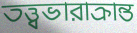
তত্ত্বভারাক্রান্ত